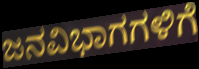
ಜನವಿಭಾಗಗಳಿಗೆ